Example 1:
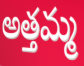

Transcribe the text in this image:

అత్తమ్మ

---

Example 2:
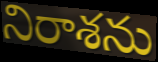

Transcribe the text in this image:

నిరాశను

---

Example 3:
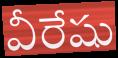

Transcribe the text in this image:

వీరేషు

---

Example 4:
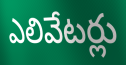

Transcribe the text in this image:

ఎలివేటర్లు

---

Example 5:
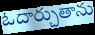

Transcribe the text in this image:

ఓదార్చుతాను